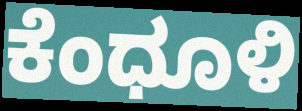
ಕೆಂಧೂಳಿ